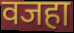
वजहा